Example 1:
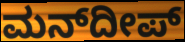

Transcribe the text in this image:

ಮನ್‍ದೀಪ್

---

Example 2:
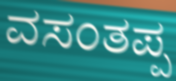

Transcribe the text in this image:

ವಸಂತಪ್ಪ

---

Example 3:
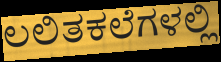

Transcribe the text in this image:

ಲಲಿತಕಲೆಗಳಲ್ಲಿ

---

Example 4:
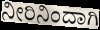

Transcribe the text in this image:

ನೀರಿನಿಂದಾಗಿ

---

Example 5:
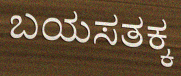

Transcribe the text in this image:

ಬಯಸತಕ್ಕ